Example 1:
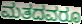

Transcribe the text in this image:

ಮತದವರೂ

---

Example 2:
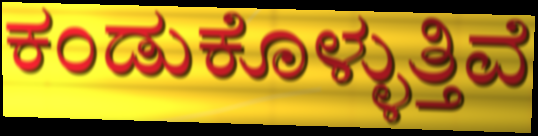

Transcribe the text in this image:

ಕಂಡುಕೊಳ್ಳುತ್ತಿವೆ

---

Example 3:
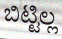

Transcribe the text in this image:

ಬಿಟ್ಟಿಲ್ಲ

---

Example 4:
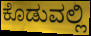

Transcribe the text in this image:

ಕೊಡುವಲ್ಲಿ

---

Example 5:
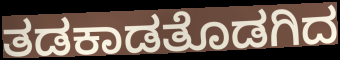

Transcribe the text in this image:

ತಡಕಾಡತೊಡಗಿದ